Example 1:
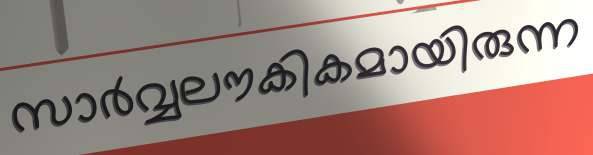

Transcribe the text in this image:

സാർവ്വലൗകികമായിരുന്ന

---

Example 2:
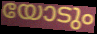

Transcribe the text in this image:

യോടും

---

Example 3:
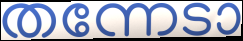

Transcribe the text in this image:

തന്നേടാ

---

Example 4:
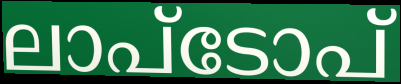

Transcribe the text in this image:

ലാപ്ടോപ്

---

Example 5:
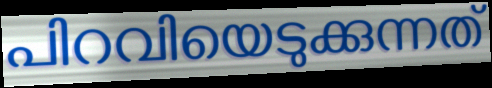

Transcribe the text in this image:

പിറവിയെടുക്കുന്നത്